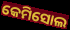
କେମିସୋଲ